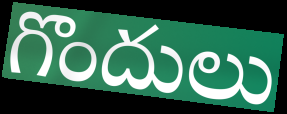
గొందులు